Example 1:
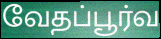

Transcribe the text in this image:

வேதப்பூர்வ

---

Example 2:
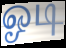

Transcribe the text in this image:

ஓடி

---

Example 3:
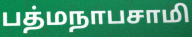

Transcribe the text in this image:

பத்மநாபசாமி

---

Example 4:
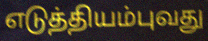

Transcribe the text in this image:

எடுத்தியம்புவது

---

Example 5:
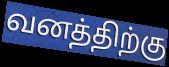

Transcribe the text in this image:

வனத்திற்கு